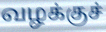
வழக்குச்